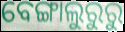
ବେଙ୍ଗାଲୁରୁରୁ